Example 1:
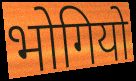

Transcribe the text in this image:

भोगियो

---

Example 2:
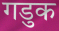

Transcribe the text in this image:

गडुक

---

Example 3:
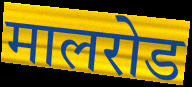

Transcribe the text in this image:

मालरोड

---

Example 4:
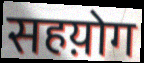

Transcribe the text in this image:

सहय़ोग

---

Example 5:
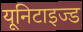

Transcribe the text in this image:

यूनिटाइज्ड